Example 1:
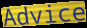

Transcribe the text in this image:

Advice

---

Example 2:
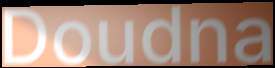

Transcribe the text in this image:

Doudna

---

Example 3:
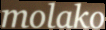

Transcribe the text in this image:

molako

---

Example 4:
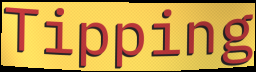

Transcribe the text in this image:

Tipping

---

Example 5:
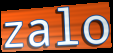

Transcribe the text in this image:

zalo